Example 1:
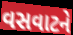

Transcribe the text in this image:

વસવાટને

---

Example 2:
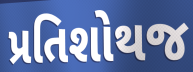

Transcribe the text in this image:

પ્રતિશોથજ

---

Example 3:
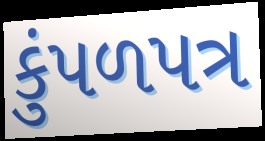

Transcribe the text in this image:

કુંપળપત્ર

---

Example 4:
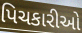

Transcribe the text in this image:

પિચકારીઓ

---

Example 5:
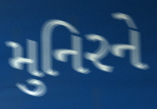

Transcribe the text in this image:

મુનિરને